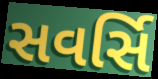
સવર્સિ